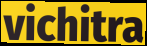
vichitra